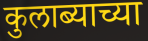
कुलाब्याच्या